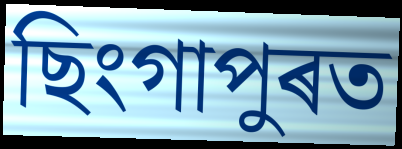
ছিংগাপুৰত